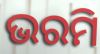
ଭରମି